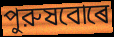
পুৰুষবোৰে